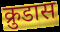
क्रुडास